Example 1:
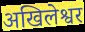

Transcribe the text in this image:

अखिलेश्वर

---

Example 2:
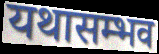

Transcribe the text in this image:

यथासम्भव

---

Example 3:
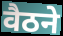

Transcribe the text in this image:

वैठने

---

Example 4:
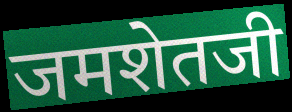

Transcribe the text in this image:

जमशेतजी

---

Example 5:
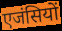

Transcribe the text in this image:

एजंसियों